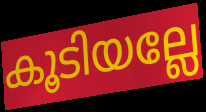
കൂടിയല്ലേ